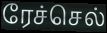
ரேச்செல்